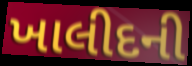
ખાલીદની